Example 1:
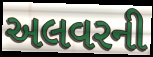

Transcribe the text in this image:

અલવરની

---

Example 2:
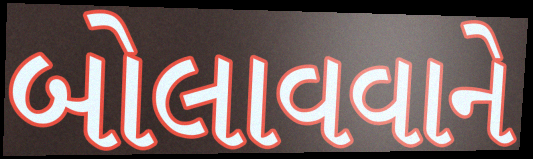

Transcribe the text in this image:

બોલાવવાને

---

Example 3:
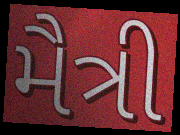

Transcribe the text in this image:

મૈત્રી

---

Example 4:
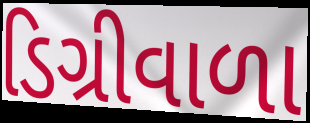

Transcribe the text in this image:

ડિગ્રીવાળા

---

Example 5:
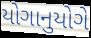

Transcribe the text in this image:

યોગાનુયોગે